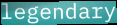
legendary